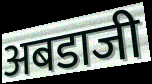
अबडाजी